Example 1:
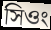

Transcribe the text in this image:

সিওং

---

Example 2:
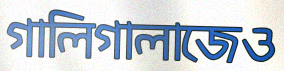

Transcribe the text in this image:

গালিগালাজেও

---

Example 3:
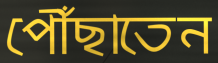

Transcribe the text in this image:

পৌঁছাতেন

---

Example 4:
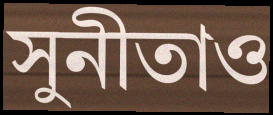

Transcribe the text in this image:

সুনীতাও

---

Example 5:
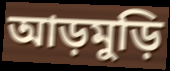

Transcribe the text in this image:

আড়মুড়ি